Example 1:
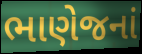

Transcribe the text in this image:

ભાણેજનાં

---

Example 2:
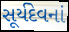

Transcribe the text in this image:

સૂર્યદેવનાં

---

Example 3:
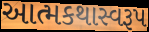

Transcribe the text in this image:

આત્મકથાસ્વરૂપ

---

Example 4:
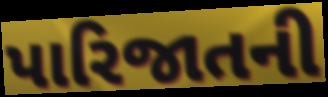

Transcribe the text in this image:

પારિજાતની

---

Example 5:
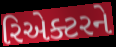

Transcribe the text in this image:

રિએક્ટરને